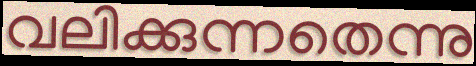
വലിക്കുന്നതെന്നു